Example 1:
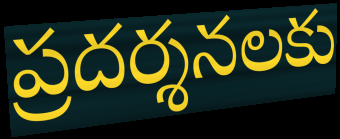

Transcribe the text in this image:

ప్రదర్శనలకు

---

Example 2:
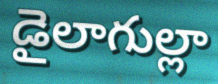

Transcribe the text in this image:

డైలాగుల్లా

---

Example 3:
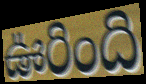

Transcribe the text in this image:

ఊరింది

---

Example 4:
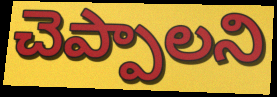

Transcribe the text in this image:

చెప్పాలని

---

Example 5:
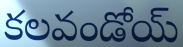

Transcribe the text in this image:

కలవండోయ్